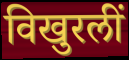
विखुरलीं